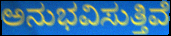
ಅನುಭವಿಸುತ್ತಿವೆ